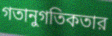
গতানুগতিকতার